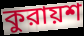
কুরায়শ